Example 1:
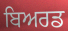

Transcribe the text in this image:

ਬਿਅਰਡ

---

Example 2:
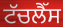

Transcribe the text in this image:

ਟੱਚਲੈੱਸ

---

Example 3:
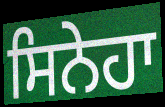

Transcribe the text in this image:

ਸਿਨੇਹਾ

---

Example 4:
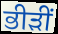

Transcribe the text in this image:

ਭੀੜੀਂ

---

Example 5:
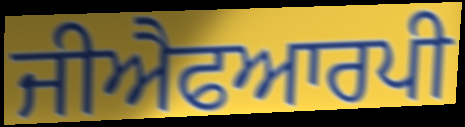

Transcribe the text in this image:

ਜੀਐਫਆਰਪੀ